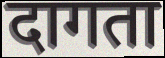
दागता